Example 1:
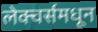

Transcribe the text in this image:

लेक्चर्समधून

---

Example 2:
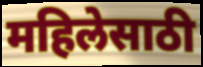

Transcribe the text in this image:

महिलेसाठी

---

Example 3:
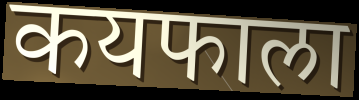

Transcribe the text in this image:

कयफाला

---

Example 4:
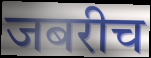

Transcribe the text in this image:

जबरीच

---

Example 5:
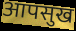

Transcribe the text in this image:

आपसुख